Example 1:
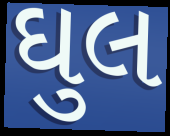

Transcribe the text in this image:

ઘુલ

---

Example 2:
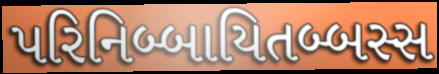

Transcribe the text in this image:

પરિનિબ્બાયિતબ્બસ્સ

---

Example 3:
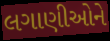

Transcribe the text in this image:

લગાણીઓને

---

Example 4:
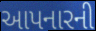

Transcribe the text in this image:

આપનારની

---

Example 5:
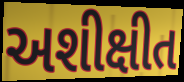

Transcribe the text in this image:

અશીક્ષીત